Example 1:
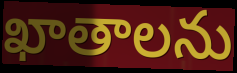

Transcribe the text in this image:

ఖాతాలను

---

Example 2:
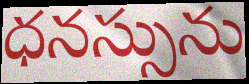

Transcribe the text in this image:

ధనస్సును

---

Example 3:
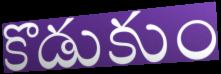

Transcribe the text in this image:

కొడుకుం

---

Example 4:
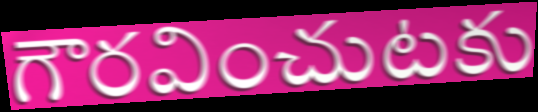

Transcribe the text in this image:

గౌరవించుటకు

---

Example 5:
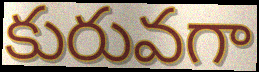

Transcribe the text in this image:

కురువగా